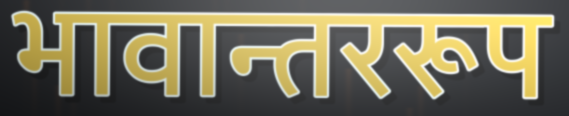
भावान्तररूप